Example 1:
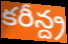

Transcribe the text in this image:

కరీన్ద్ర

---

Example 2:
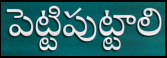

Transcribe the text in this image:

పెట్టిపుట్టాలి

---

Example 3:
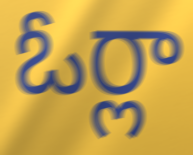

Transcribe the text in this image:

ఓర్లా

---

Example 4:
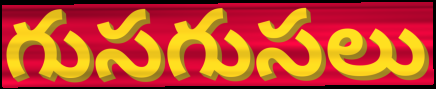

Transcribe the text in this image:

గుసగుసలు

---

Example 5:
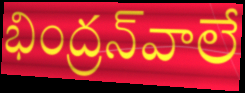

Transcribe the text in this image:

భింద్రన్‌వాలే